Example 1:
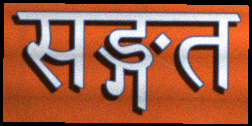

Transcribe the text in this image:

सङ्गत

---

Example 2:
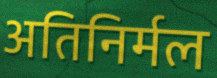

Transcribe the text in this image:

अतिनिर्मल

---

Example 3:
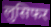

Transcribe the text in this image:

लुसिफर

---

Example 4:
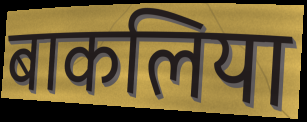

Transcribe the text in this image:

बाकलिया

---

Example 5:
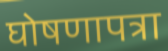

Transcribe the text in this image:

घोषणापत्रा